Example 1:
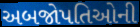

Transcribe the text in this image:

અબજોપતિઓની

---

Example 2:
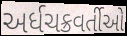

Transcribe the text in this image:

અર્ધચક્રવર્તીઓ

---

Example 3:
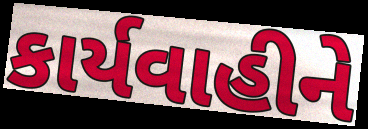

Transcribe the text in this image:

કાર્યવાહીને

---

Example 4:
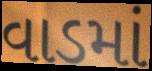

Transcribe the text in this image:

વાડમાં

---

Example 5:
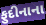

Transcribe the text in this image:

ફુદીનાના